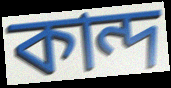
কান্দ